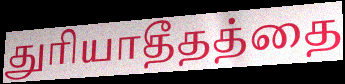
துரியாதீதத்தை